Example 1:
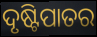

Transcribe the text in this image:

ଦୃଷ୍ଟିପାତର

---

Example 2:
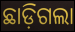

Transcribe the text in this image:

ଛାଡ଼ିଗଲା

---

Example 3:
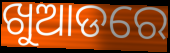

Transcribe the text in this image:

ଖୁଆଡରେ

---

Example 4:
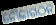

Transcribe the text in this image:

ନୌକାଗଠନ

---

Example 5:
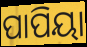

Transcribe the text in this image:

ପାପିୟା